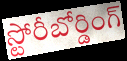
స్టోరీబోర్డింగ్